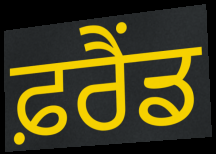
ਫ਼ਰੈਂਡ